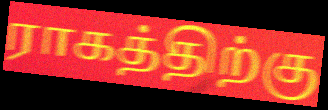
ராகத்திற்கு